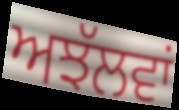
ਅਝੱਲਵਾਂ